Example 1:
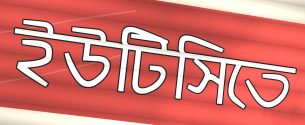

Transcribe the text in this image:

ইউটিসিতে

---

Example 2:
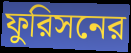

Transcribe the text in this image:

ফুরিসনের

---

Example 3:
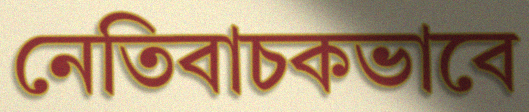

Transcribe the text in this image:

নেতিবাচকভাবে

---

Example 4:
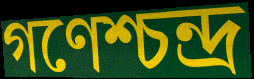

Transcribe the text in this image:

গণেশ্চন্দ্র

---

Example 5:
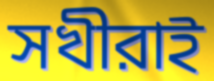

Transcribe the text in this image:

সখীরাই